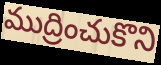
ముద్రించుకొని